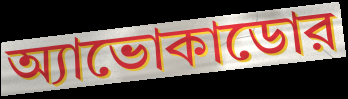
অ্যাভোকাডোর